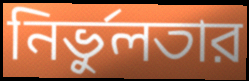
নির্ভুলতার